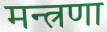
मन्त्रणा